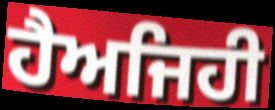
ਹੈਅਜਿਹੀ